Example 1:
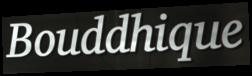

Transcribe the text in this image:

Bouddhique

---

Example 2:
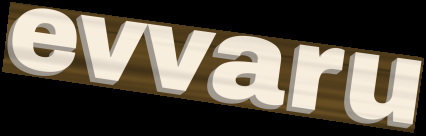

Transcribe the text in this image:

evvaru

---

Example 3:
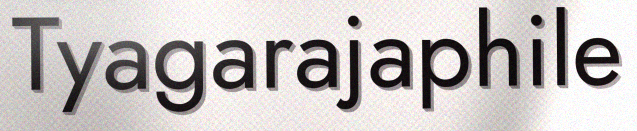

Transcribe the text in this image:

Tyagarajaphile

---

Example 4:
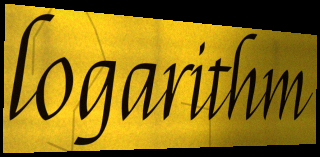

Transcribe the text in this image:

logarithm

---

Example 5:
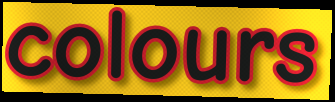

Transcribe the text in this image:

colours